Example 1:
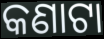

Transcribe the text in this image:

କଣାଟା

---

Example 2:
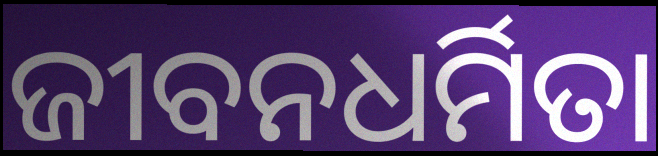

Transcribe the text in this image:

ଜୀବନଧର୍ମିତା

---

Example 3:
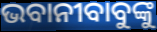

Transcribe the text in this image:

ଭବାନୀବାବୁଙ୍କୁ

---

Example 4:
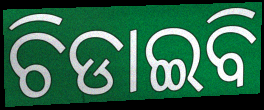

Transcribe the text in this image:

ଚିଡାଇବି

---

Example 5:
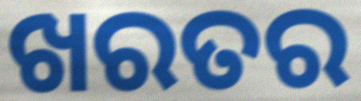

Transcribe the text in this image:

ଖରତର